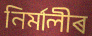
নিৰ্মালীৰ